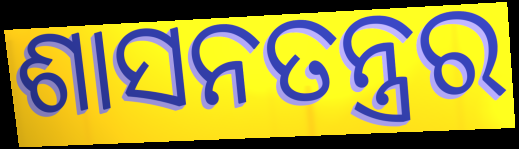
ଶାସନତନ୍ତ୍ରର